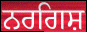
ਨਰਗਿਸ਼